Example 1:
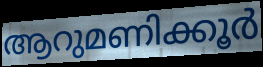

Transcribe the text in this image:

ആറുമണിക്കൂർ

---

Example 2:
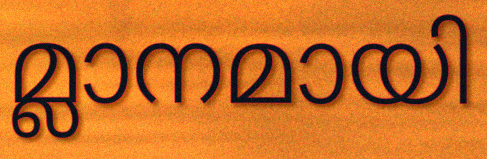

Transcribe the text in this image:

മ്ലാനമായി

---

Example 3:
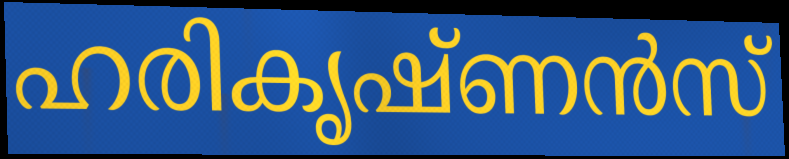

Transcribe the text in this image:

ഹരികൃഷ്ണൻസ്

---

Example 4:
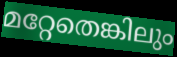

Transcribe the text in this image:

മറ്റേതെങ്കിലും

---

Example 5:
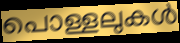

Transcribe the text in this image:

പൊള്ളലുകൾ